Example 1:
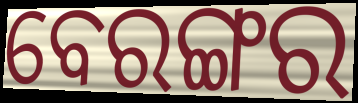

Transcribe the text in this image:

ବେରଙ୍ଗର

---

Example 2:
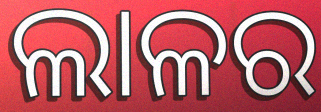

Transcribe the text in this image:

ଲାଳର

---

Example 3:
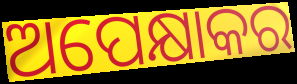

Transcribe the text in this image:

ଅପେକ୍ଷାକର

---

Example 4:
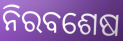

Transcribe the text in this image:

ନିରବଶେଷ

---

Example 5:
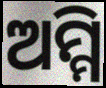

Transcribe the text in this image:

ଅମ୍ମି